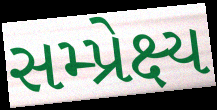
સમ્પ્રેક્ષ્ય